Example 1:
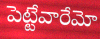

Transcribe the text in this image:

పెట్టేవారేమో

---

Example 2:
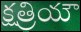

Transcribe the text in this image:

క్షత్రియౌ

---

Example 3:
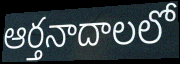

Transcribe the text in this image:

ఆర్తనాదాలలో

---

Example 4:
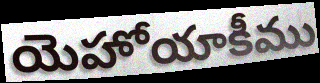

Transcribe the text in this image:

యెహోయాకీము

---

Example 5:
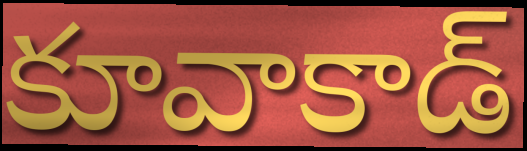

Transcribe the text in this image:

కూవాకాడ్